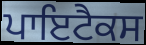
ਪਾਇਟੈਕਸ